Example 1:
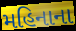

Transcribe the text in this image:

મહિનાના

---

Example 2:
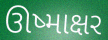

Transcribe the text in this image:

ઊષ્માક્ષર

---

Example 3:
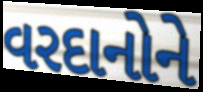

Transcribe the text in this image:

વરદાનોને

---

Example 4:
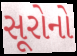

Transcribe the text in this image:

સૂરોનો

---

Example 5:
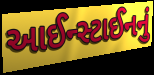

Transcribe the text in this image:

આઈન્સ્ટાઈનનું